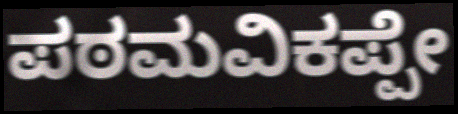
ಪಠಮವಿಕಪ್ಪೇ